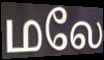
மலே